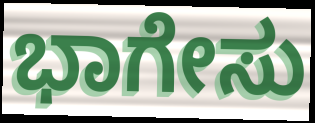
ಭಾಗೇಸು